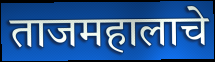
ताजमहालाचे